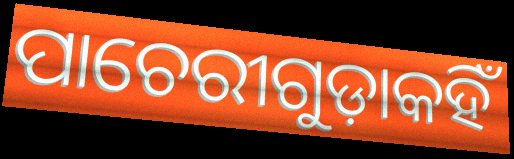
ପାଚେରୀଗୁଡ଼ାକହିଁ